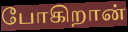
போகிறான்